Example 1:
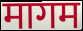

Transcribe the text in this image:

मागम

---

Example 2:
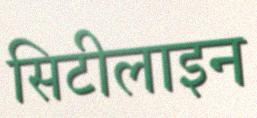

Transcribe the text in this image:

सिटीलाइन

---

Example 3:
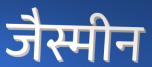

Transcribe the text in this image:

जैस्‍मीन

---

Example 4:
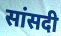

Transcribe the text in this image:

सांसदी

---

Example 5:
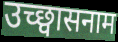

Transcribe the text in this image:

उच्छ्वासनाम